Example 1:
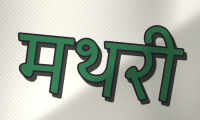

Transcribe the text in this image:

मथरी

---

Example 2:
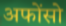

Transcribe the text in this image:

अफोंसो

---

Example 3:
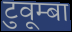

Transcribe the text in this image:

टुवूम्बा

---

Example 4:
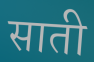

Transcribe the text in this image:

साती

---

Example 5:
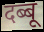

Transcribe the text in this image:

दब्बू